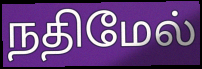
நதிமேல்